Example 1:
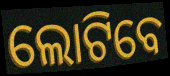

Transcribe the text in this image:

ଲୋଟିବେ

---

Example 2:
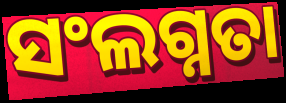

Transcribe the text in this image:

ସଂଲଗ୍ନତା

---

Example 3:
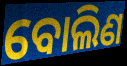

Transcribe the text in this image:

ବୋଲିଣ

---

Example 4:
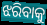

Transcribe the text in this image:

ଝରିବାକୁ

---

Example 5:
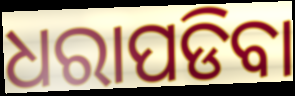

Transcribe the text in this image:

ଧରାପଡିବା